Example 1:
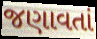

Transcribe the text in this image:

જણાવતાં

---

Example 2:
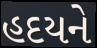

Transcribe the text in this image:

હદયને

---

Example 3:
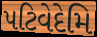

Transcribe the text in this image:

પટિવેદેમિ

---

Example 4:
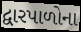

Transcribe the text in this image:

દ્વારપાળોના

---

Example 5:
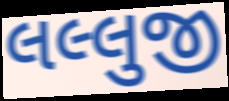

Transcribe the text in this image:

લલ્લુજી